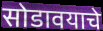
सोडावयाचे